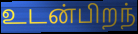
உடன்பிறந்